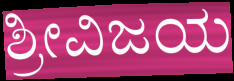
ಶ್ರೀವಿಜಯ